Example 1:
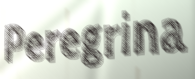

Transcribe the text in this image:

Peregrina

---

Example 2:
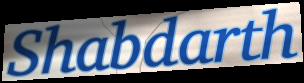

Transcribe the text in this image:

Shabdarth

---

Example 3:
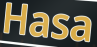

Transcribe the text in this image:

Hasa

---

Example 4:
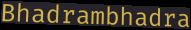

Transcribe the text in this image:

Bhadrambhadra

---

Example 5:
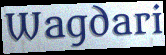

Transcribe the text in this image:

Wagdari